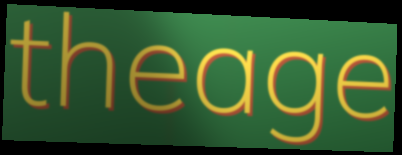
theage